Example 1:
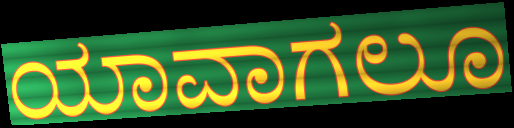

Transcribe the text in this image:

ಯಾವಾಗಲೂ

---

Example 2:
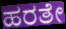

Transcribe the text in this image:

ಹರತೇ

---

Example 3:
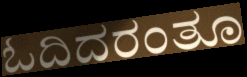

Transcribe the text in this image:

ಓದಿದರಂತೂ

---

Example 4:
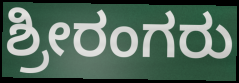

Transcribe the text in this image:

ಶ್ರೀರಂಗರು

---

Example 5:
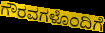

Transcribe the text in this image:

ಗೌರವಗಳೊಂದಿಗೆ